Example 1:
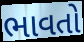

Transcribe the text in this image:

ભાવતો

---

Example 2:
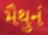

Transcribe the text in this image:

મૈથુનં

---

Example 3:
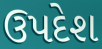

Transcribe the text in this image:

ઉપદેશ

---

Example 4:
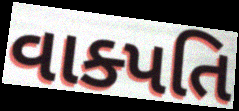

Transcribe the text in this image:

વાક્પતિ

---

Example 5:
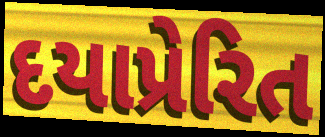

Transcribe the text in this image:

દયાપ્રેરિત